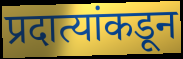
प्रदात्यांकडून